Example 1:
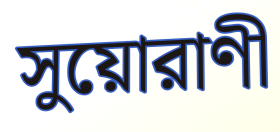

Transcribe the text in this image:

সুয়োরাণী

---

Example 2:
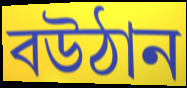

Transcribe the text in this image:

বউঠান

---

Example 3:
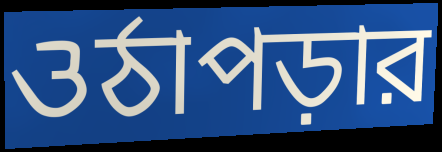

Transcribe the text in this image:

ওঠাপড়ার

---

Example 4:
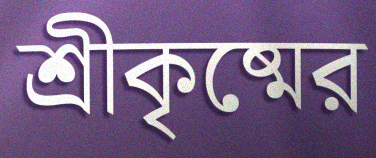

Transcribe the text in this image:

শ্রীকৃষ্মের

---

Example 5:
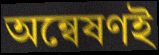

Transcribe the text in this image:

অন্বেষণই